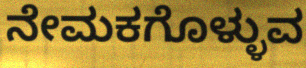
ನೇಮಕಗೊಳ್ಳುವ